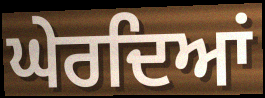
ਘੇਰਦਿਆਂ